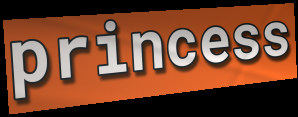
princess